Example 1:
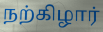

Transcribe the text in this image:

நற்கிழார்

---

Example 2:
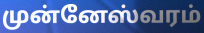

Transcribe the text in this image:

முன்னேஸ்வரம்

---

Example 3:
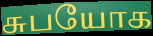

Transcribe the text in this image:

சுபயோக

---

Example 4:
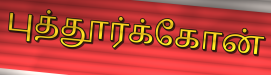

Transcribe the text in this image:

புத்தூர்க்கோன்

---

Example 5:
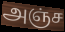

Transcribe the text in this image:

அஞ்ச